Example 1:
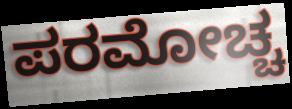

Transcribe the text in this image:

ಪರಮೋಚ್ಚ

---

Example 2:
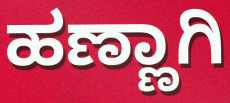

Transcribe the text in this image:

ಹಣ್ಣಾಗಿ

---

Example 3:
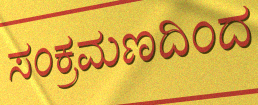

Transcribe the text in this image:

ಸಂಕ್ರಮಣದಿಂದ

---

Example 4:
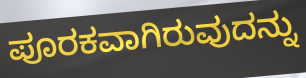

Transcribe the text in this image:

ಪೂರಕವಾಗಿರುವುದನ್ನು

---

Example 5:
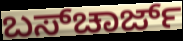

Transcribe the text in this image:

ಬಸ್‌ಚಾರ್ಜ್